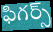
ఫిగర్స్